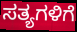
ಸತ್ಯಗಳಿಗೆ